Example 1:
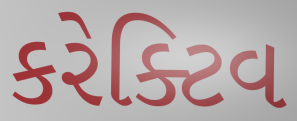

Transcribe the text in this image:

કરેક્ટિવ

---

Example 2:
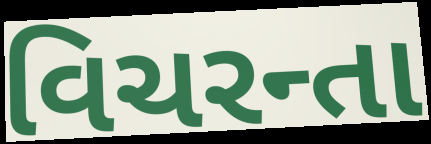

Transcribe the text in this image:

વિચરન્તા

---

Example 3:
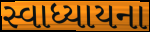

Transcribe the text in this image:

સ્વાધ્યાયના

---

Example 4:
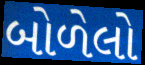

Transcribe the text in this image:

બોળેલો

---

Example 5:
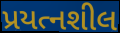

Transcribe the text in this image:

પ્રયત્નશીલ